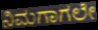
ನಿಮಗಾಗಲೇ